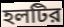
হলটির